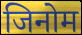
जिनोम